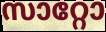
സാറ്റോ